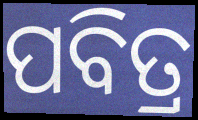
ପବିତ୍ର